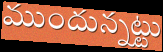
ముందున్నట్టు